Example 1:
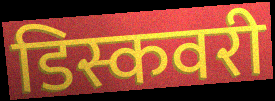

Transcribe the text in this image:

डिस्कवरी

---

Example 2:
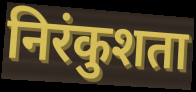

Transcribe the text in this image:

निरंकुशता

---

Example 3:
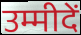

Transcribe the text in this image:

उम्मीदें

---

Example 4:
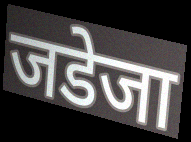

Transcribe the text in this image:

जडेजा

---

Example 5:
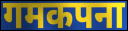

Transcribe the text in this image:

गमकपना